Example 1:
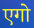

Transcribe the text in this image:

एगो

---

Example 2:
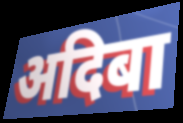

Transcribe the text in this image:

अदिबा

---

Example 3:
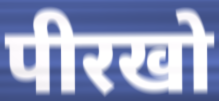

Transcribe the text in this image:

पीरखो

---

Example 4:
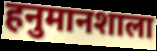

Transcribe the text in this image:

हनुमानशाला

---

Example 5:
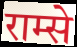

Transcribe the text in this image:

राम्से